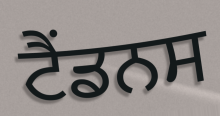
ਟੈਂਡਨਸ